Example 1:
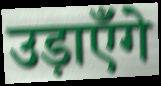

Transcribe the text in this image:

उड़ाएँगे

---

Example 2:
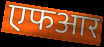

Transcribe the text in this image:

एफआर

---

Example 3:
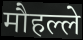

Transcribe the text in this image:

मौहल्ले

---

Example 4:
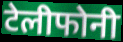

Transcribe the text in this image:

टेलीफोनी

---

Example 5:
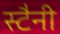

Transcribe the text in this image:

स्टैनी